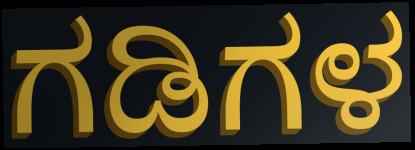
ಗಡಿಗಳ